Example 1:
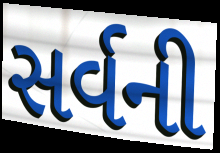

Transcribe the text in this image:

સર્વની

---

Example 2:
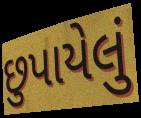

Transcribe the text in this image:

છુપાયેલું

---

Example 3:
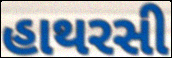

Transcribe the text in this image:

હાથરસી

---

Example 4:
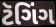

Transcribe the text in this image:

ટૅગિંગ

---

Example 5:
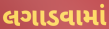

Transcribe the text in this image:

લગાડવામાં